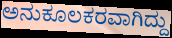
ಅನುಕೂಲಕರವಾಗಿದ್ದು